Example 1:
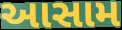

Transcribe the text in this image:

આસામ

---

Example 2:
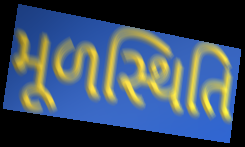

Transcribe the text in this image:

મૂળસ્થિતિ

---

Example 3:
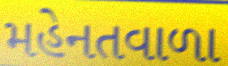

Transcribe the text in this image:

મહેનતવાળા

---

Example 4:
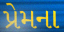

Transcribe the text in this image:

પ્રેમના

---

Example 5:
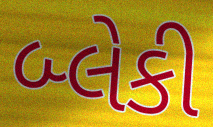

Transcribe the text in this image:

બ્લેકી